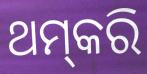
ଥମ୍‌କରି